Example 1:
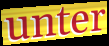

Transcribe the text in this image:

unter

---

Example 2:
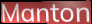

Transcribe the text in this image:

Manton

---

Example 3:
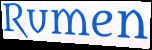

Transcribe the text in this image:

Rumen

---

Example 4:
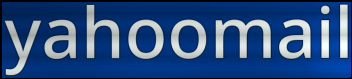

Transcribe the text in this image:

yahoomail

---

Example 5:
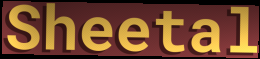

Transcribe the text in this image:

Sheetal